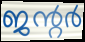
ജന്റർ